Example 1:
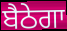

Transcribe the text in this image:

ਬੈਠੇਗਾ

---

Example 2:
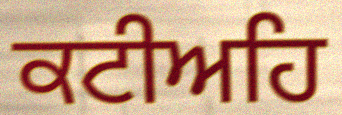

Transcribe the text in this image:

ਕਟੀਅਹਿ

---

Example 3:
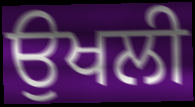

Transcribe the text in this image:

ਉਖਲੀ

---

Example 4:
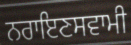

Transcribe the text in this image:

ਨਰਾਇਣਸਵਾਮੀ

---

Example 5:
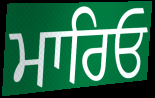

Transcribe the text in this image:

ਮਾਰਿਓ